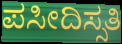
ಪಸೀದಿಸ್ಸತಿ